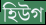
হিউগ